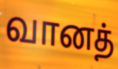
வானத்